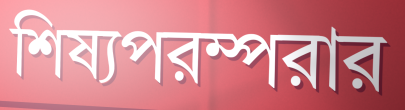
শিষ্যপরম্পরার